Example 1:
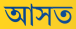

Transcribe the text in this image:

আসত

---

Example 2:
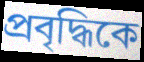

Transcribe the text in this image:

প্রবৃদ্ধিকে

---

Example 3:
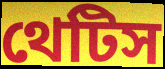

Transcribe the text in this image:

থেটিস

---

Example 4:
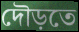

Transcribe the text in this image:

দৌড়তে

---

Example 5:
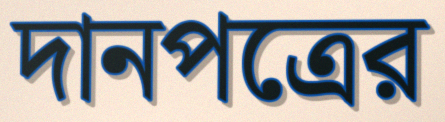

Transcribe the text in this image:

দানপত্রের